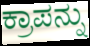
ಕ್ರಾಪನ್ನು